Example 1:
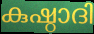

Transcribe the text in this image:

കുഷ്ഠാദി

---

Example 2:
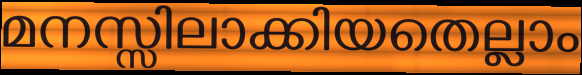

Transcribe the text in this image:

മനസ്സിലാക്കിയതെല്ലാം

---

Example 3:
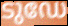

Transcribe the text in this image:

ടുഡേ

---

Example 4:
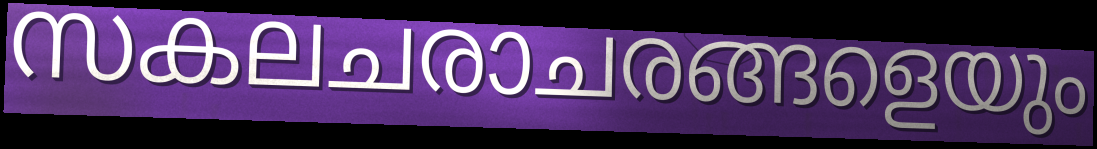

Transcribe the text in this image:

സകലചരാചരങ്ങളെയും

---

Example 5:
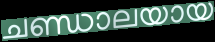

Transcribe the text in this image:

ചണ്ഡാലയായ